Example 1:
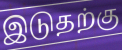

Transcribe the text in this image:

இடுதற்கு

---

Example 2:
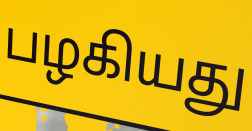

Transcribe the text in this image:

பழகியது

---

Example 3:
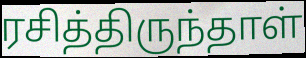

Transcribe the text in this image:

ரசித்திருந்தாள்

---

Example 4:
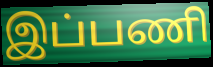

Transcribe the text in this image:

இப்பணி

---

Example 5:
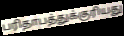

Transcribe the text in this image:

பரிதாபத்துக்குரியது